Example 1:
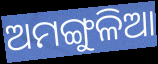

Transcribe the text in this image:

ଅମଙ୍ଗୁଳିଆ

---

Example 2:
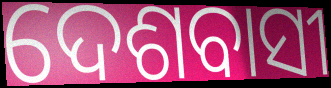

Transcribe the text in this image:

ଦେଶବାସୀ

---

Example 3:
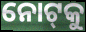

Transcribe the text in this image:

ନୋଟ୍‌କୁ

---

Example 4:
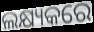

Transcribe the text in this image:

ଲକ୍ଷ୍ୟକରେ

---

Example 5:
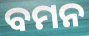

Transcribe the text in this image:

ବମନ